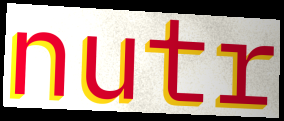
nutr